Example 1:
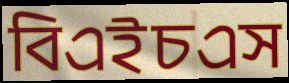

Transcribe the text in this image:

বিএইচএস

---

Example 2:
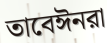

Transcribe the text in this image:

তাবেঈনরা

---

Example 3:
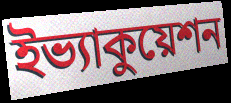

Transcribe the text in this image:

ইভ্যাকুয়েশন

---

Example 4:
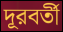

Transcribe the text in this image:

দূরবর্তী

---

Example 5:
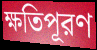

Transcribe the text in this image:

ক্ষতিপূরণ